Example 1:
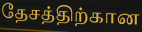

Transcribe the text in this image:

தேசத்திற்கான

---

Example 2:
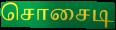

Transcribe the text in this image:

சொசைடி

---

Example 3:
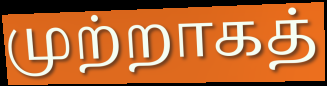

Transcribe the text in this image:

முற்றாகத்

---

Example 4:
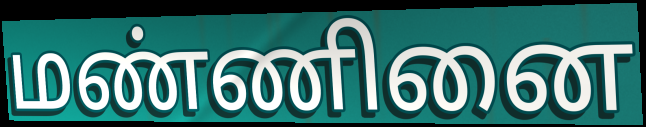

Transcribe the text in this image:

மண்ணினை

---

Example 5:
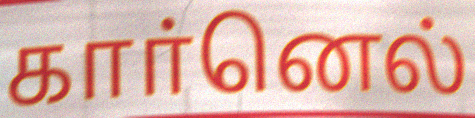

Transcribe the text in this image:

கார்னெல்